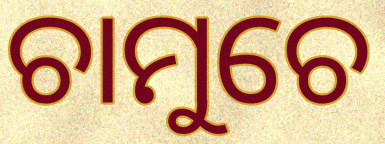
ଚାମୁଚେ